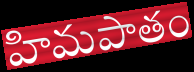
హిమపాతం